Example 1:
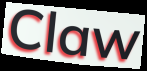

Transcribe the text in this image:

Claw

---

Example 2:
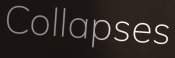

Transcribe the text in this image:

Collapses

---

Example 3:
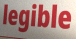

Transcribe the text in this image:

legible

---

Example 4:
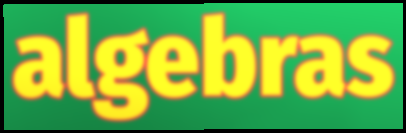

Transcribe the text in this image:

algebras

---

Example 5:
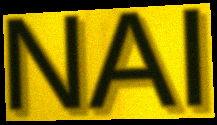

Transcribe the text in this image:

NAI